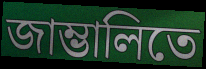
জাম্ভালিতে